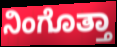
ನಿಂಗೊತ್ತಾ